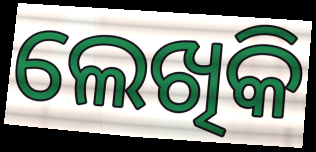
ଲେଖିକି